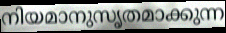
നിയമാനുസൃതമാക്കുന്ന